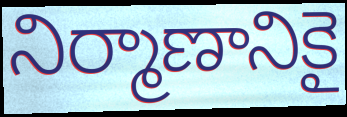
నిర్మాణానికై